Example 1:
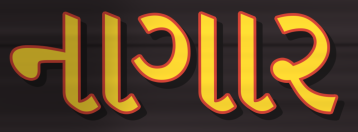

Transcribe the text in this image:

નાગાર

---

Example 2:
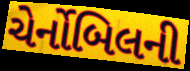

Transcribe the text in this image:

ચેર્નોબિલની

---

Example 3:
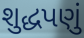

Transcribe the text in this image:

શુદ્ધપણું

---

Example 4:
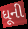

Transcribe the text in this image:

ધૂની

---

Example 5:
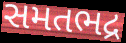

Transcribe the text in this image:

સમતભદ્ર